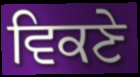
ਵਿਕਣੇ